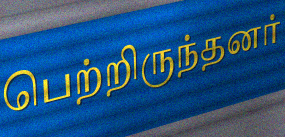
பெற்றிருந்தனர்